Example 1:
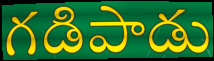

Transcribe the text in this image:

గడిపాడు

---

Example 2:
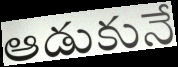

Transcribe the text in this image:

ఆడుకునే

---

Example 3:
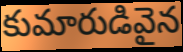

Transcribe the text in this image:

కుమారుడివైన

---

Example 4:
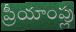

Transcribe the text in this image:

ప్రీయాంప్లు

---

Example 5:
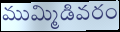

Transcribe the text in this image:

ముమ్మిడివరం